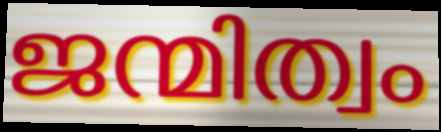
ജന്മിത്വം